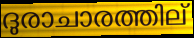
ദുരാചാരത്തില്